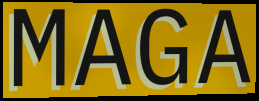
MAGA